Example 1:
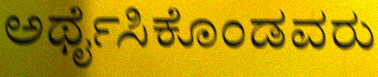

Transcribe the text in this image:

ಅರ್ಥೈಸಿಕೊಂಡವರು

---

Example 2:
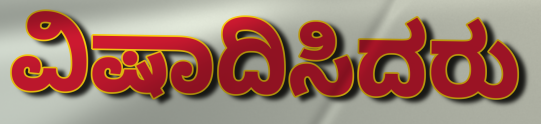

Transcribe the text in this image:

ವಿಷಾದಿಸಿದರು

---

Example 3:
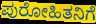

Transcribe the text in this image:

ಪುರೋಹಿತನಿಗೆ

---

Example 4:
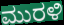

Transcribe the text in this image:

ಮುರಳಿ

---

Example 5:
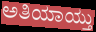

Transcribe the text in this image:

ಅತಿಯಾಯ್ತು